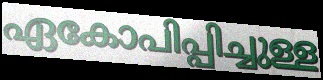
ഏകോപിപ്പിച്ചുള്ള